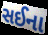
સઈના